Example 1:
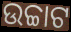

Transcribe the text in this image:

ଉଚ୍ଚାଟ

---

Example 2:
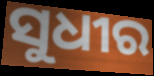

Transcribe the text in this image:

ସୁଧୀର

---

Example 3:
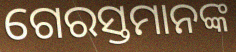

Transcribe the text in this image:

ଗେରସ୍ତମାନଙ୍କ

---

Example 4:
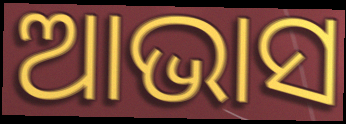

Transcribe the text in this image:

ଆଭାସ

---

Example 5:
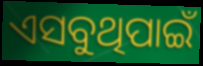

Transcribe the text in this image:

ଏସବୁଥିପାଇଁ